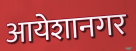
आयेशानगर